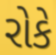
રોકે